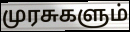
முரசுகளும்